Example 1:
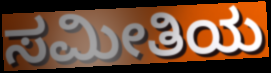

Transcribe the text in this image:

ಸಮೀತಿಯ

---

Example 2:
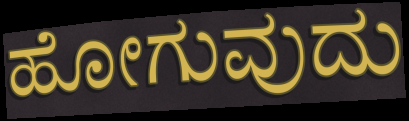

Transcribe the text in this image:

ಹೋಗುವುದು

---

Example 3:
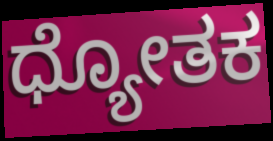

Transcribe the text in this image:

ಧ್ಯೋತಕ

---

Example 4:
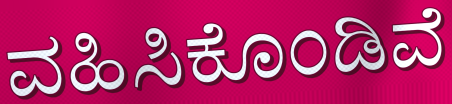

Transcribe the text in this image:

ವಹಿಸಿಕೊಂಡಿವೆ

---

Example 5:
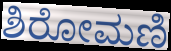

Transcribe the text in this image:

ಶಿರೋಮಣಿ